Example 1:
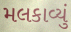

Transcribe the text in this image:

મલકાવ્યું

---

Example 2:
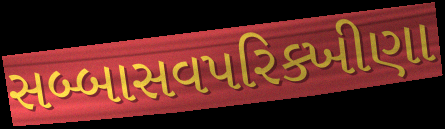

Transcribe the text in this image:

સબ્બાસવપરિક્ખીણા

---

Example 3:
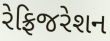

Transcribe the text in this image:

રેફ્રિજરેશન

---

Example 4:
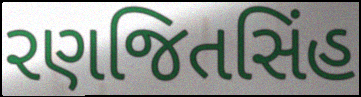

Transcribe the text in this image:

રણજિતસિંહ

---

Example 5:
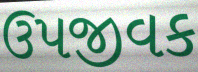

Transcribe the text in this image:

ઉપજીવક